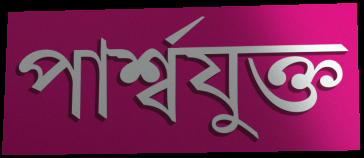
পার্শ্বযুক্ত